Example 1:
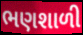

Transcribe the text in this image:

ભણશાળી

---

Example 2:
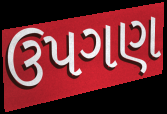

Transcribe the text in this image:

ઉપગણ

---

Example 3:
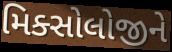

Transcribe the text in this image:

મિક્સોલોજીને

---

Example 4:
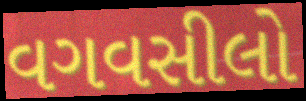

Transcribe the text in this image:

વગવસીલો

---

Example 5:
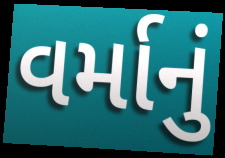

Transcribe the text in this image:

વર્માનું